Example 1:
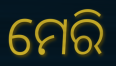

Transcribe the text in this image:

ମେରି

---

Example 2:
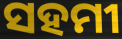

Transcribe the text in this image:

ସହମୀ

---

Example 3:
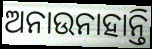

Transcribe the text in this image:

ଅନାଉନାହାନ୍ତି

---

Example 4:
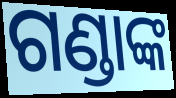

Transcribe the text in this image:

ଗଣ୍ଡାଙ୍କ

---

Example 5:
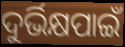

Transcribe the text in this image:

ଦୁର୍ଭିକ୍ଷପାଇଁ